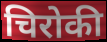
चिरोकी